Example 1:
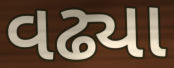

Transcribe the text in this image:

વઢ્યા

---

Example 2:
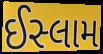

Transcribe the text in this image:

ઈસ્લામ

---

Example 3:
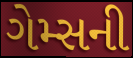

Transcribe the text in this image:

ગેમ્સની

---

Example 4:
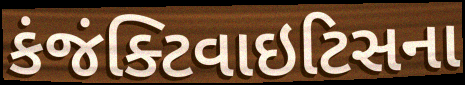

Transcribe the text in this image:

કંજંક્ટિવાઇટિસના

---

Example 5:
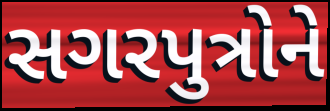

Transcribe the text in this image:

સગરપુત્રોને